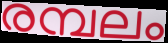
രമ്പലം